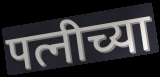
पत्नीच्या